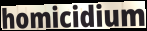
homicidium